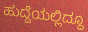
ಹುದ್ದೆಯಲ್ಲಿದ್ದೂ